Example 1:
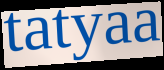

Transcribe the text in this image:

tatyaa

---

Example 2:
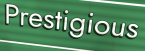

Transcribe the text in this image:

Prestigious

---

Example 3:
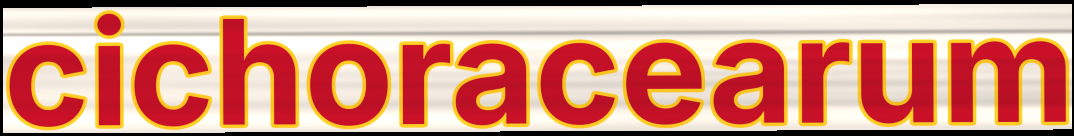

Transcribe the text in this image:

cichoracearum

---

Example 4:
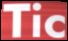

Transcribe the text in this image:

Tic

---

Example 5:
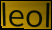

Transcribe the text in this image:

leol